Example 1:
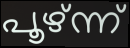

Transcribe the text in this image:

പൂഴ്ന്ന്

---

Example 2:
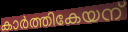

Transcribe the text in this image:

കാർത്തികേയന്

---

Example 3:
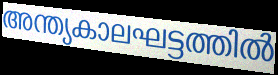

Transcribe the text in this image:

അന്ത്യകാലഘട്ടത്തിൽ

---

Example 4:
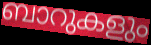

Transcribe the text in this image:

ബാറുകളും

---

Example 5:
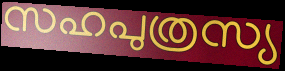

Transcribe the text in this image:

സഹപുത്രസ്യ